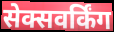
सेक्सवर्किंग